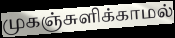
முகஞ்சுளிக்காமல்